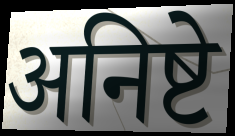
अनिष्टे